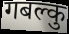
गबल्कु